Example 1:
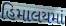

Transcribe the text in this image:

હિમાલયમાં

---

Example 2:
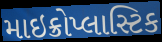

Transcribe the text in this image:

માઇક્રોપ્લાસ્ટિક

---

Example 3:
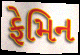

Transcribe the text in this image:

ફેમિન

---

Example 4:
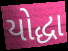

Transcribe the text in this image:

યોદ્ધા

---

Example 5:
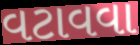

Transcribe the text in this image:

વટાવવા